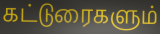
கட்டுரைகளும்